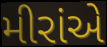
મીરાંએ